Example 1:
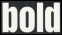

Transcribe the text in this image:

bold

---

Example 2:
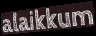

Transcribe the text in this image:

alaikkum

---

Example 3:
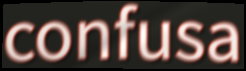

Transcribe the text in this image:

confusa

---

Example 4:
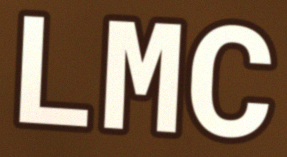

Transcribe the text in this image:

LMC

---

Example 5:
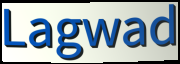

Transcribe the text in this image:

Lagwad